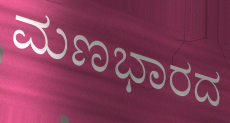
ಮಣಭಾರದ